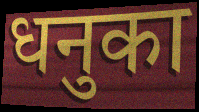
धनुका